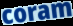
coram